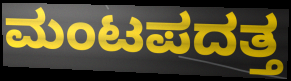
ಮಂಟಪದತ್ತ